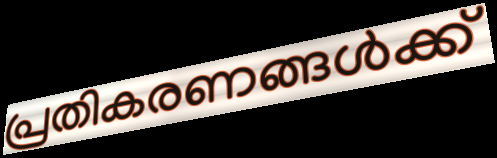
പ്രതികരണങ്ങൾക്ക്